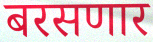
बरसणार